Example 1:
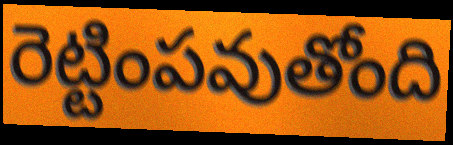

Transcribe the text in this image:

రెట్టింపవుతోంది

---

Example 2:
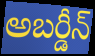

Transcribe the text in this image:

అబర్డీన్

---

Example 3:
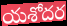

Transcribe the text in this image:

యశోదర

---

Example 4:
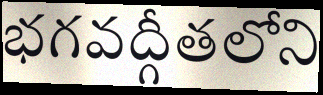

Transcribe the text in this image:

భగవద్గీతలోని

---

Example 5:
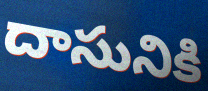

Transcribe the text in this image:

దాసునికి